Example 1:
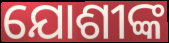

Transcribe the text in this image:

ଯୋଶୀଙ୍କ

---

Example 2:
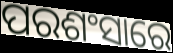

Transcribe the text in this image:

ପରଶଂସାରେ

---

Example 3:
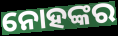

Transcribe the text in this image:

ନୋହଙ୍କର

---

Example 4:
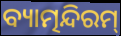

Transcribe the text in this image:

ବ୍ୟାତ୍ମନ୍ଦିରମ୍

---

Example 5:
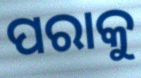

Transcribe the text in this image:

ପରାକୁ